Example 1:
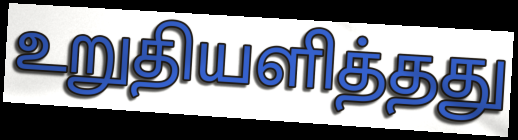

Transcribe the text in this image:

உறுதியளித்தது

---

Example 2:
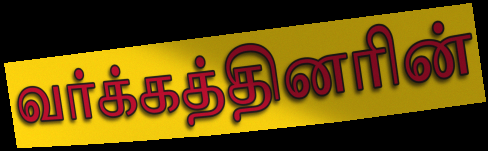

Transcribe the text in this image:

வர்க்கத்தினரின்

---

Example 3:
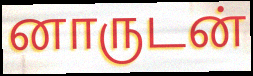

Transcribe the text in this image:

னாருடன்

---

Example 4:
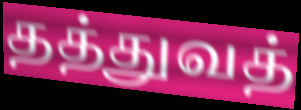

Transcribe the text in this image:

தத்துவத்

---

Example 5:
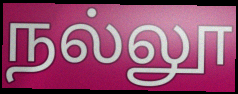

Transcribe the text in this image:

நல்லூ